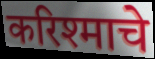
करिश्माचे